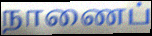
நாணைப்